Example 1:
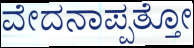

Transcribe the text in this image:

ವೇದನಾಪ್ಪತ್ತೋ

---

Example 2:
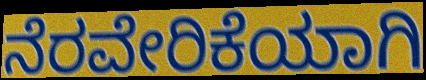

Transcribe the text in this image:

ನೆರವೇರಿಕೆಯಾಗಿ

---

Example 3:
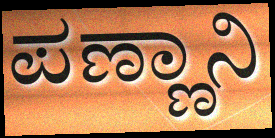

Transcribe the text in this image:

ಪಣ್ಣಾನಿ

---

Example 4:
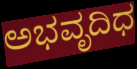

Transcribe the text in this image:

ಅಭವೃದಿಧ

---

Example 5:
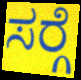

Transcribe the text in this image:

ಸರ್‍ಗೆ